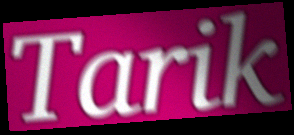
Tarik